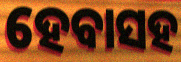
ହେବାସହ